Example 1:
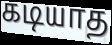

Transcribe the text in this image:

கடியாத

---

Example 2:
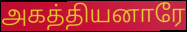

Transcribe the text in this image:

அகத்தியனாரே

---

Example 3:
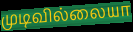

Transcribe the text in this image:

முடிவில்லையா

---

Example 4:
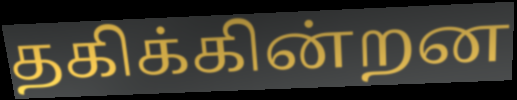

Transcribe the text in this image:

தகிக்கின்றன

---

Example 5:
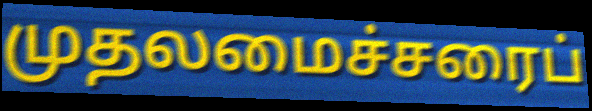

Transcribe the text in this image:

முதலமைச்சரைப்